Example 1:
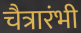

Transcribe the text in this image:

चैत्रारंभी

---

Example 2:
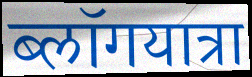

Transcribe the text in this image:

ब्लॉगयात्रा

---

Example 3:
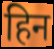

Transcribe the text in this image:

हिन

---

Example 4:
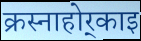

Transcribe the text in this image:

क्रस्नाहोर्काइ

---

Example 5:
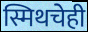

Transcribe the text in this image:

स्मिथचेही